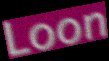
Loon